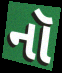
નૉ